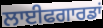
ਲਾਈਫਗਾਰਡਾਂ